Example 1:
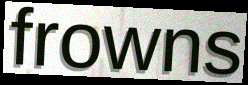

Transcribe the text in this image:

frowns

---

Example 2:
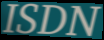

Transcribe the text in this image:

ISDN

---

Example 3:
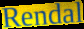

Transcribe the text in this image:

Rendal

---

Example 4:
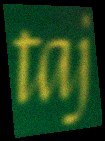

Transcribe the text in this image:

taj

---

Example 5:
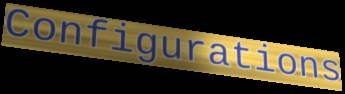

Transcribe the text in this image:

Configurations